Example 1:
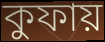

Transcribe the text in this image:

কুফায়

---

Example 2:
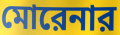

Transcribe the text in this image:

মোরেনার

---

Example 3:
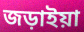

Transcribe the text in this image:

জড়াইয়া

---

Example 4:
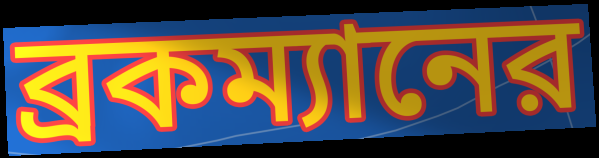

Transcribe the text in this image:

ব্রকম্যানের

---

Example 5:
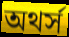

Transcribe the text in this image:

অথর্স